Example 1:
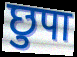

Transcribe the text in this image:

छुपा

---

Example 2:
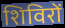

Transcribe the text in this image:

शिविरों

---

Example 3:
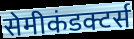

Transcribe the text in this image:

सेमीकंडक्टर्स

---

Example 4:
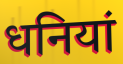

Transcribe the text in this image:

धनियां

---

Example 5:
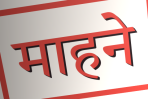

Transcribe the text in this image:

माहने